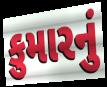
કુમારનું